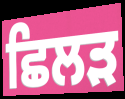
ਛਿਲੜ